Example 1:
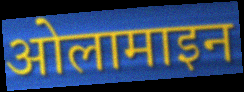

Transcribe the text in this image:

ओलामाइन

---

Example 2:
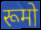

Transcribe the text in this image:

रूमो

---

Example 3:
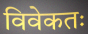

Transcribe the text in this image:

विवेकतः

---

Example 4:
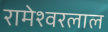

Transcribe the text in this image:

रामेश्वरलाल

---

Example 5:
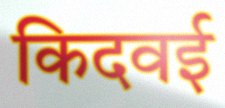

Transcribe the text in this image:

किदवई